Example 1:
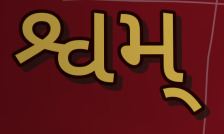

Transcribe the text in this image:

શ્વમ્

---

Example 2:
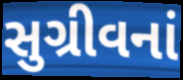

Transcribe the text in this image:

સુગ્રીવનાં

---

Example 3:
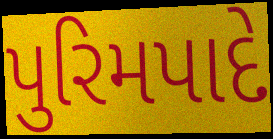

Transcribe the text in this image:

પુરિમપાદે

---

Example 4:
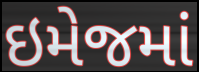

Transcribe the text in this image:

ઇમેજમાં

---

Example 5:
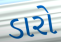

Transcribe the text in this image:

ડારો